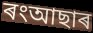
ৰংআছাৰ